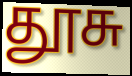
தூசு